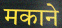
मकाने